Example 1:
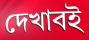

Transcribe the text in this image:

দেখাবই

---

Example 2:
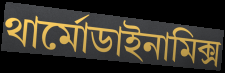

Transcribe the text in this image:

থার্মোডাইনামিক্স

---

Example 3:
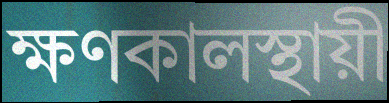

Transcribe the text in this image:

ক্ষণকালস্থায়ী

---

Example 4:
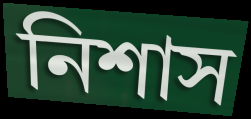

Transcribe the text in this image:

নিশাস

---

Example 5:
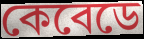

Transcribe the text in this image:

কেবেডে